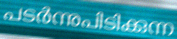
പടർന്നുപിടിക്കുന്ന